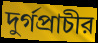
দুর্গপ্রাচীর